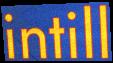
intill